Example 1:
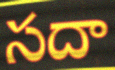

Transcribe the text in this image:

సదా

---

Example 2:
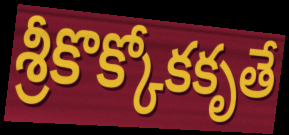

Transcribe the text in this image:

శ్రీకొక్కోకకృతే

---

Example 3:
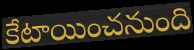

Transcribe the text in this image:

కేటాయించనుంది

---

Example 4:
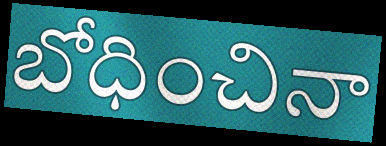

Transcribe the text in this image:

బోధించినా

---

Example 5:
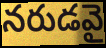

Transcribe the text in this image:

నరుడవై